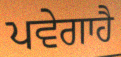
ਪਵੇਗਾਹੈ